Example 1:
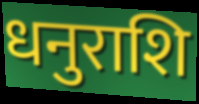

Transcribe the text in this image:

धनुराशि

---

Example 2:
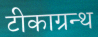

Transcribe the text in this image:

टीकाग्रन्थ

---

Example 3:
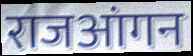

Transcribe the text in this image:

राजआंगन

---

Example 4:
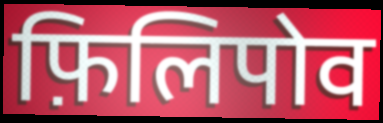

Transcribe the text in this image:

फ़िलिपोव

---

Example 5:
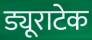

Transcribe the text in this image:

ड्यूराटेक